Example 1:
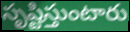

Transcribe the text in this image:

సృష్టిస్తుంటారు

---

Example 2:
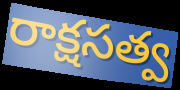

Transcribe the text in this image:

రాక్షసత్వ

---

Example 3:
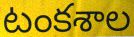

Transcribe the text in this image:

టంకశాల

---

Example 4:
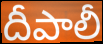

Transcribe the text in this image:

దీపాలీ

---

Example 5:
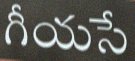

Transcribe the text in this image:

గీయసే